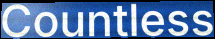
Countless